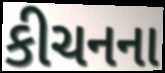
કીચનના